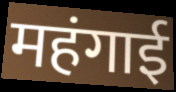
महंगाई